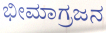
ಭೀಮಾಗ್ರಜನ